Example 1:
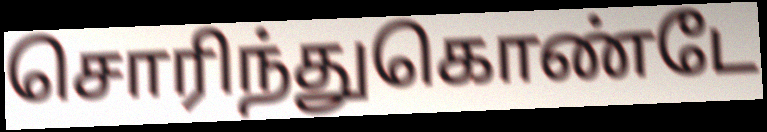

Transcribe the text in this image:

சொரிந்துகொண்டே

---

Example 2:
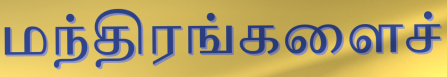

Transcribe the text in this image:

மந்திரங்களைச்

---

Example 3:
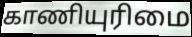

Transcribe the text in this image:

காணியுரிமை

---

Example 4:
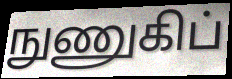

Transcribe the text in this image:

நுணுகிப்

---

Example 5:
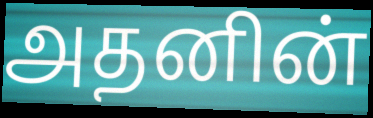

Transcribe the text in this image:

அதனின்